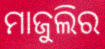
ମାଜୁଲିର